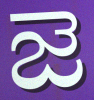
జె